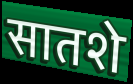
सातशे